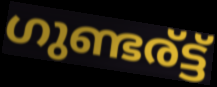
ഗുണ്ടര്ട്ട്